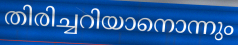
തിരിച്ചറിയാനൊന്നും